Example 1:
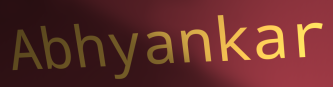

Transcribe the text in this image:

Abhyankar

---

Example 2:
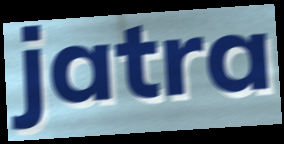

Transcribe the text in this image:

jatra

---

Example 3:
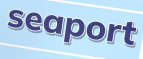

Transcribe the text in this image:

seaport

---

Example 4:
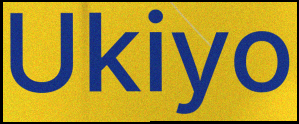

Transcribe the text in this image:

Ukiyo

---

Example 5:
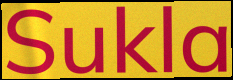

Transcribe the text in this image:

Sukla